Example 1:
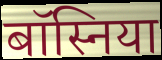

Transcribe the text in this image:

बॉस्निया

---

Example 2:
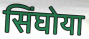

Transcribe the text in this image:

सिंघोया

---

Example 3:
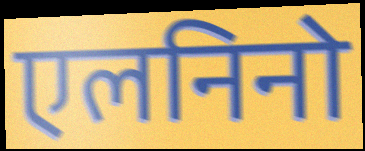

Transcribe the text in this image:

एलनिनो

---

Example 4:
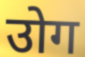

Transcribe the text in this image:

उोग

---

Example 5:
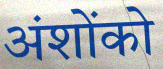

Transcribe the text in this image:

अंशोंको